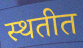
स्थतीत